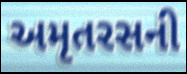
અમૃતરસની